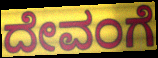
ದೇವಂಗೆ